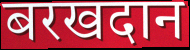
बरखदान